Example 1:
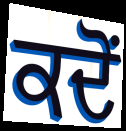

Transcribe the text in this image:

ਕਦੋਂ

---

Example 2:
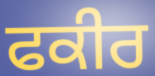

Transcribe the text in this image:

ਫਕੀਰ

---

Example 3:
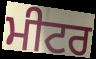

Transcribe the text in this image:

ਮੀਟਰ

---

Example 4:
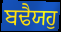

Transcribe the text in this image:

ਬਢੈਯਹੁ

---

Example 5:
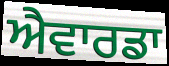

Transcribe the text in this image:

ਐਵਾਰਡਾ